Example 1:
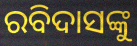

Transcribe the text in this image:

ରବିଦାସଙ୍କୁ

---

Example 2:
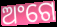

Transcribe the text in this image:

ଅଂଗେ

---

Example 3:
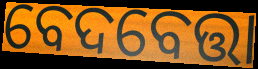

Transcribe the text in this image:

ବେଦବେତ୍ତା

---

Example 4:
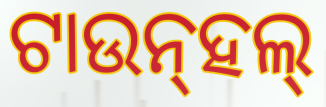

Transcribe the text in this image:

ଟାଉନ୍‌ହଲ୍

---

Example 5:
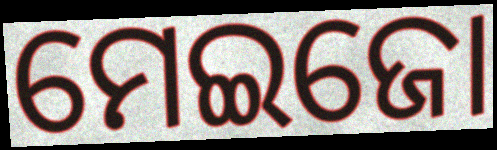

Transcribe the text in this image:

ମେଇଜୋ